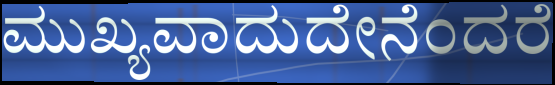
ಮುಖ್ಯವಾದುದೇನೆಂದರೆ